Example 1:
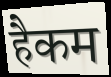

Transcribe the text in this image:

हैकम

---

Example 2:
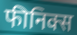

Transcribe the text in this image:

फीनिक्स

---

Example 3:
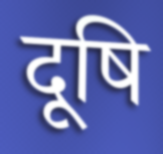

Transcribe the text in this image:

दूषि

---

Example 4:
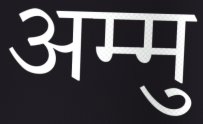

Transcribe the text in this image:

अम्मु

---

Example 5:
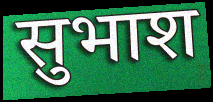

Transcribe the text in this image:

सुभाश